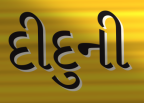
દીદુની